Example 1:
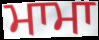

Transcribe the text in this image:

ਮਾਮਾ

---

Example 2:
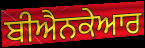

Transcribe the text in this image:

ਬੀਐਨਕੇਆਰ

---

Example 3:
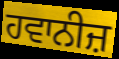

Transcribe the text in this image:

ਹਵਾਨੀਜ਼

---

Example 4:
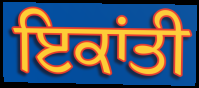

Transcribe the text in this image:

ਇਕਾਂਤੀ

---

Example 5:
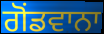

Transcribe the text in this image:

ਗੋਂਡਵਾਨਾ